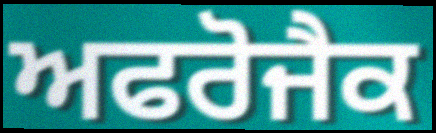
ਅਫਰੋਜੈਕ